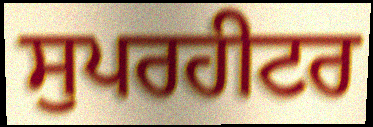
ਸੁਪਰਹੀਟਰ